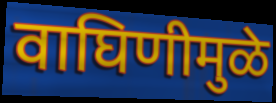
वाघिणीमुळे